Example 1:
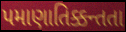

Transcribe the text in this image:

પમાણાતિક્કન્તતા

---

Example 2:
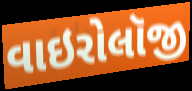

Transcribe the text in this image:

વાઇરોલૉજી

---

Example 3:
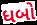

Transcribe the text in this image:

ધબો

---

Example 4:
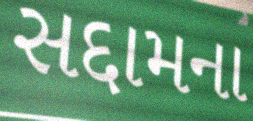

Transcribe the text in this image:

સદ્દામના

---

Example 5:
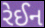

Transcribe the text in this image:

રેઈન